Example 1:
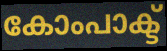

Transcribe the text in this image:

കോംപാക്ട്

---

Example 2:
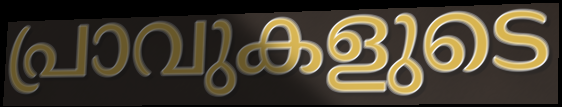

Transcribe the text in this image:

പ്രാവുകളുടെ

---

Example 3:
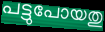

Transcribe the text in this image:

പട്ടുപോയതു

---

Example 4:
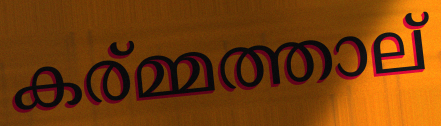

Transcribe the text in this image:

കര്മ്മത്താല്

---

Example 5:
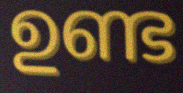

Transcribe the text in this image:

ഉണ്ട